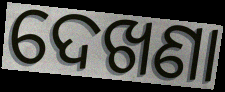
ଦେଖଣା